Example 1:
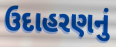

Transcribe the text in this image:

ઉદાહરણનું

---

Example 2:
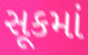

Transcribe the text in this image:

સૂકમાં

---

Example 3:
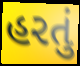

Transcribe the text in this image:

હરતું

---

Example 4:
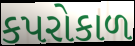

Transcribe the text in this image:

કપરોકાળ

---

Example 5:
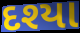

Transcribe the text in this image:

દશ્યા